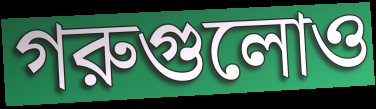
গরুগুলোও